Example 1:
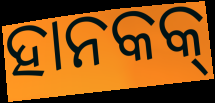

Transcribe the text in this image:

ହାନକକ୍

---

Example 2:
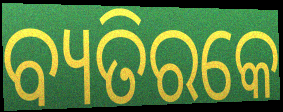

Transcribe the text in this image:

ବ୍ୟତିରକେ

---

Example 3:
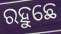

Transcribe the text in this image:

ରହୁଛେ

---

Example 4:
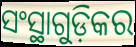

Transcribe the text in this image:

ସଂସ୍ଥାଗୁଡ଼ିକର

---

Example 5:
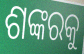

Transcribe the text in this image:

ଶଙ୍କରକୁ